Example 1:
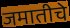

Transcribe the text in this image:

जमातीचे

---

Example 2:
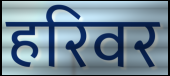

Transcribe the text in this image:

हरिवर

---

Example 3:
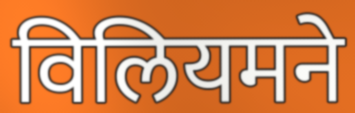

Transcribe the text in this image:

विलियमने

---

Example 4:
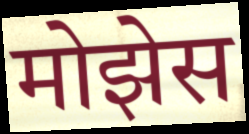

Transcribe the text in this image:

मोझेस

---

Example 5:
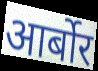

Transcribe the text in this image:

आर्बोर